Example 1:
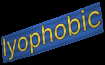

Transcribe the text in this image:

lyophobic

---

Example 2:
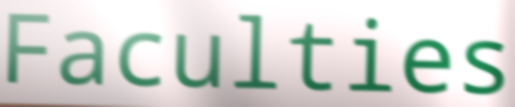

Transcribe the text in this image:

Faculties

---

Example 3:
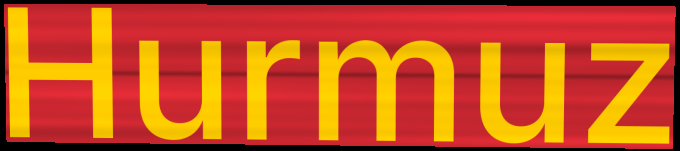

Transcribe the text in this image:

Hurmuz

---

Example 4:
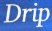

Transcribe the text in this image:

Drip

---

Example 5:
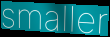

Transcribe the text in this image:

smaller